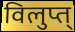
विलुप्त्